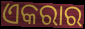
ଏକରାର